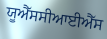
ਯੂਐੱਸਸੀਆਈਐੱਸ